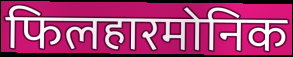
फिलहारमोनिक